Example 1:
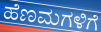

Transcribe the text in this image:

ಹೆಣಮಗಳಿಗೆ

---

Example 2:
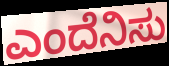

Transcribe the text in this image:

ಎಂದೆನಿಸು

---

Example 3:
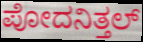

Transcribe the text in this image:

ಪೋದನಿತ್ತಲ್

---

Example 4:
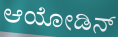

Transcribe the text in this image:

ಆಯೋಡಿನ್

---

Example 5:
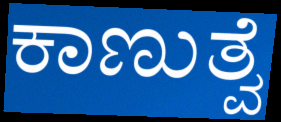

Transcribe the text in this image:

ಕಾಣುತ್ವೆ